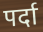
पर्दा